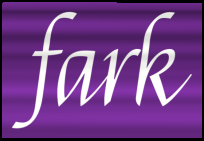
fark